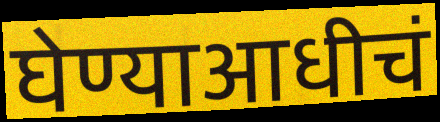
घेण्याआधीचं